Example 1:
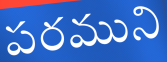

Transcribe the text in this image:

పరముని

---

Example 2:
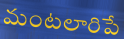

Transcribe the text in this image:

మంటలారిపే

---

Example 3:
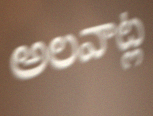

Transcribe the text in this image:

అలవాట్ల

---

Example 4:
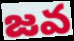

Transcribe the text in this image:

జవ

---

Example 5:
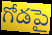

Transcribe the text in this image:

గోడపై